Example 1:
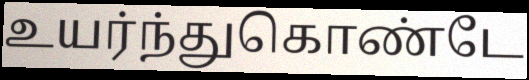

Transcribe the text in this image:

உயர்ந்துகொண்டே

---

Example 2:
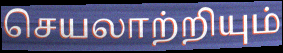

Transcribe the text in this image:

செயலாற்றியும்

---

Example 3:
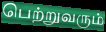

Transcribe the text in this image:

பெற்றுவரும்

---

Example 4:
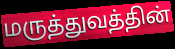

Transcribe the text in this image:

மருத்துவத்தின்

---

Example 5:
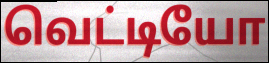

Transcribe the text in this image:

வெட்டியோ